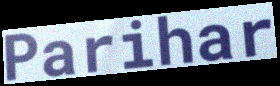
Parihar